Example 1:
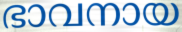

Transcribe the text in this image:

ഭാവനായ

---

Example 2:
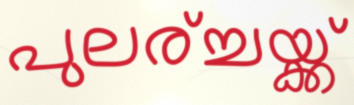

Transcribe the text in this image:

പുലര്ച്ചയ്ക്ക്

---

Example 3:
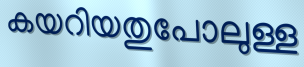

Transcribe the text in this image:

കയറിയതുപോലുള്ള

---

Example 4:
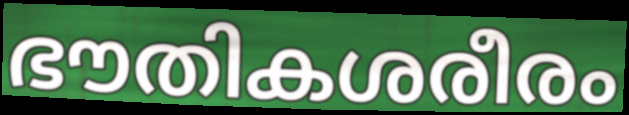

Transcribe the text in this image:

ഭൗതികശരീരം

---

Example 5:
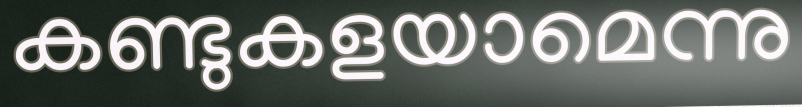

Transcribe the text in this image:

കണ്ടുകളയാമെന്നു